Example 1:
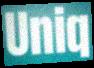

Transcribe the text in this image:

Uniq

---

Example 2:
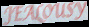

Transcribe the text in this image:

JEALOUSY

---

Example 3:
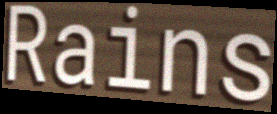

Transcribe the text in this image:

Rains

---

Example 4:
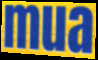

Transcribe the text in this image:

mua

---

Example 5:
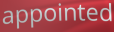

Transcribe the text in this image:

appointed